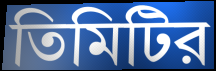
তিমিটির